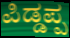
ಪಿಡ್ಡಪ್ಪ